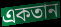
একতান